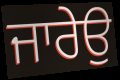
ਜਾਰੇਉ